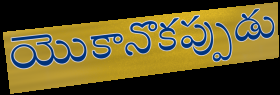
యొకానొకప్పుడు